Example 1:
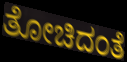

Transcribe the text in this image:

ತೋಚಿದಂತೆ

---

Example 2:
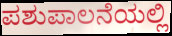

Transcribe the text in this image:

ಪಶುಪಾಲನೆಯಲ್ಲಿ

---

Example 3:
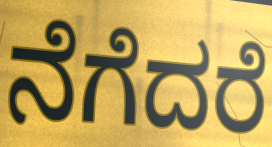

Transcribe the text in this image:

ನೆಗೆದರೆ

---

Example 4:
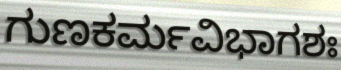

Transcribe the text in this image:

ಗುಣಕರ್ಮವಿಭಾಗಶಃ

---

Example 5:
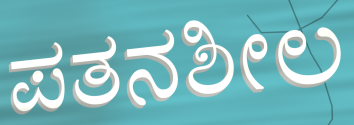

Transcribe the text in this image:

ಪತನಶೀಲ